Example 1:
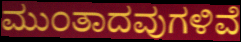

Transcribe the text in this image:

ಮುಂತಾದವುಗಳಿವೆ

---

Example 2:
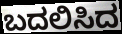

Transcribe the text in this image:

ಬದಲಿಸಿದ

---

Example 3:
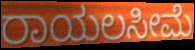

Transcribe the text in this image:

ರಾಯಲಸೀಮೆ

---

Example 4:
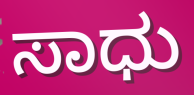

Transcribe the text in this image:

ಸಾಧು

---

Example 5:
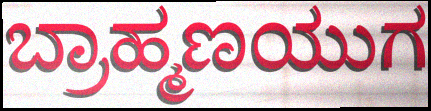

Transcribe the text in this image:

ಬ್ರಾಹ್ಮಣಯುಗ